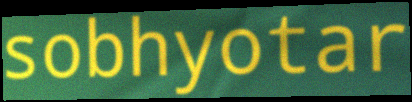
sobhyotar